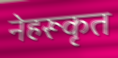
नेहरूकृत